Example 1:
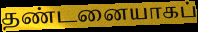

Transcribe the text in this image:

தண்டனையாகப்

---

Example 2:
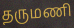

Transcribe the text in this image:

தருமணி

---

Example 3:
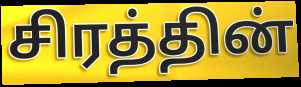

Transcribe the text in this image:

சிரத்தின்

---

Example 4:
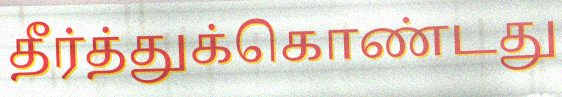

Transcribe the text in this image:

தீர்த்துக்கொண்டது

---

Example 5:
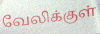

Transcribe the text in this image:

வேலிக்குள்